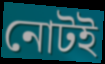
নোটই